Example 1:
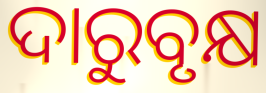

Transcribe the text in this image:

ଦାରୁବୃକ୍ଷ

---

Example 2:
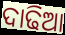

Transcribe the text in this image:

ଦାଢିଆ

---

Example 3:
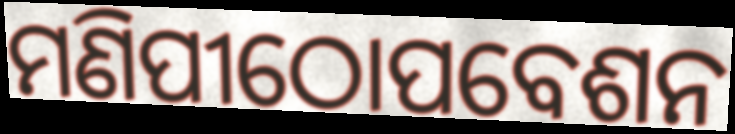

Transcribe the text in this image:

ମଣିପୀଠୋପବେଶନ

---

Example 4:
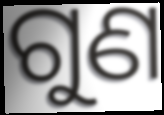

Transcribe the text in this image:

ଗୁଣ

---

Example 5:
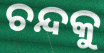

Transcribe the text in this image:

ଚନ୍ଦକୁ